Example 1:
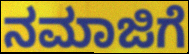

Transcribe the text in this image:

ನಮಾಜಿಗೆ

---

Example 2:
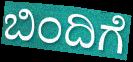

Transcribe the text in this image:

ಬಿಂದಿಗೆ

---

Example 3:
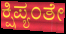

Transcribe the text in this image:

ಕ್ಷಿಪ್ಯಂತೇ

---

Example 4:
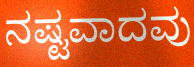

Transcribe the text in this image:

ನಷ್ಟವಾದವು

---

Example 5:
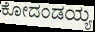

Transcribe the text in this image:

ಕೋದಂಡಯ್ಯ